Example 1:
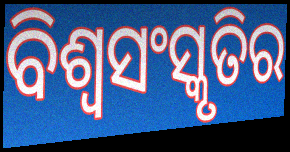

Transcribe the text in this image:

ବିଶ୍ୱସଂସ୍କୃତିର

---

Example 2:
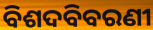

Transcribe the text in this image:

ବିଶଦବିବରଣୀ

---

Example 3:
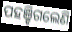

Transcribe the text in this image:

ପହଞ୍ଚିଗଲେଣି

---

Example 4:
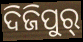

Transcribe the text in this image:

ଦିଜିପୁର୍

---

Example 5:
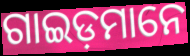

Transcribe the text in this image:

ଗାଇଡ଼ମାନେ